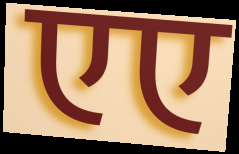
एए